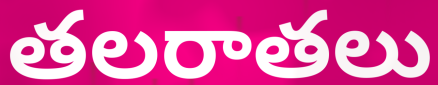
తలరాతలు